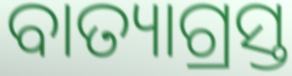
ବାତ୍ୟାଗ୍ରସ୍ତ